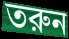
তরুন